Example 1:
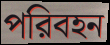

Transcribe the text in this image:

পরিবহন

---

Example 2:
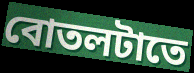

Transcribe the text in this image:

বোতলটাতে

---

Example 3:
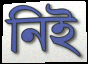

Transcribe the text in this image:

নিই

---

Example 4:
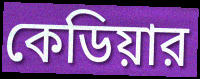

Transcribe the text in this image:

কেডিয়ার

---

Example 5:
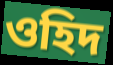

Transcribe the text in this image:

ওহিদ